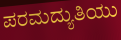
ಪರಮದ್ಯುತಿಯು